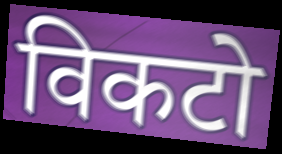
विकटो